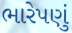
ભારેપણું